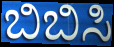
ಬಿಬಿಸಿ